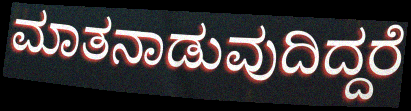
ಮಾತನಾಡುವುದಿದ್ದರೆ